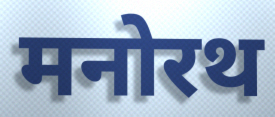
मनोरथ